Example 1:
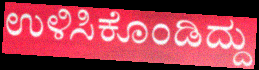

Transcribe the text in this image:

ಉಳಿಸಿಕೊಂಡಿದ್ದು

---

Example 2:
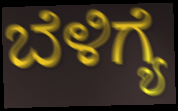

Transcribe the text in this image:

ಬೆಳಿಗ್ಯೆ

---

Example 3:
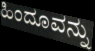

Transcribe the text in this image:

ಹಿಂದೂವನ್ನು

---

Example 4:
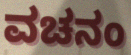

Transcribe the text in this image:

ವಚನಂ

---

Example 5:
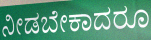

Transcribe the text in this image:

ನೀಡಬೇಕಾದರೂ